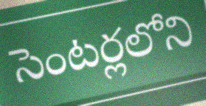
సెంటర్లలోని